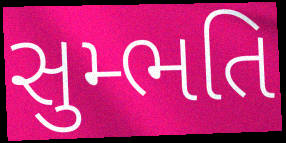
સુમ્ભતિ